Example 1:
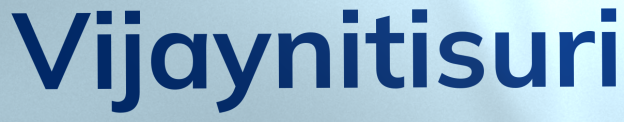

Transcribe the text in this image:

Vijaynitisuri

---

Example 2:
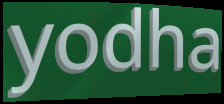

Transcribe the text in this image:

yodha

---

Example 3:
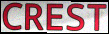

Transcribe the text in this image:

CREST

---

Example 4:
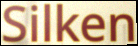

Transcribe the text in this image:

Silken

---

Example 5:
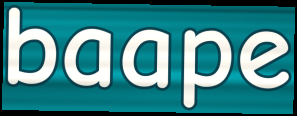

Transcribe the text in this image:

baape